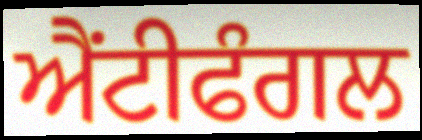
ਐਂਟੀਫੰਗਲ